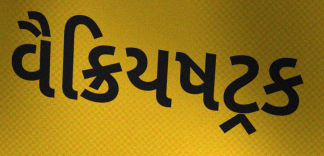
વૈક્રિયષટ્રક